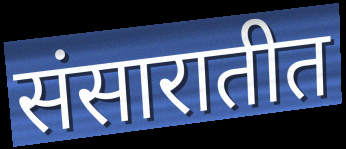
संसारातीत